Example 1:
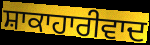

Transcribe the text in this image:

ਸ਼ਾਕਾਹਾਰੀਵਾਦ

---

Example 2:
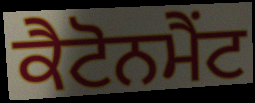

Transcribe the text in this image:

ਕੈਟੋਨਮੈਂਟ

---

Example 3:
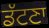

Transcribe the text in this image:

ਡੱਟਣਾ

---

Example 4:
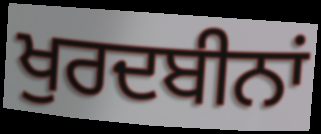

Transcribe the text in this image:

ਖੁਰਦਬੀਨਾਂ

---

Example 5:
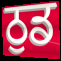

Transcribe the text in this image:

ਠੁਡ